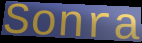
Sonra